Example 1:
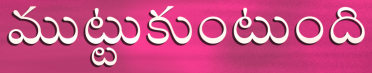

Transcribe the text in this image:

ముట్టుకుంటుంది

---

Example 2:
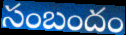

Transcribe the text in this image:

సంబందం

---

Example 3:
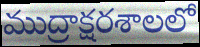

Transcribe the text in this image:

ముద్రాక్షరశాలలో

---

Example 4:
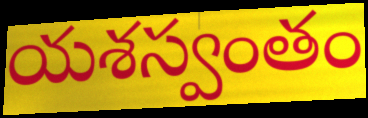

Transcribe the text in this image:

యశస్వంతం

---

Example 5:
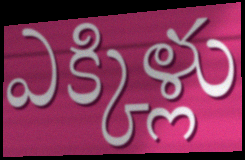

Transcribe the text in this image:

ఎక్కిళ్లు